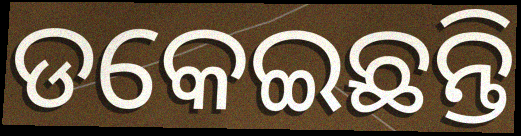
ଡକେଇଛନ୍ତି